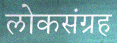
लोकसंग्रह